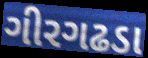
ગીરગઢડા